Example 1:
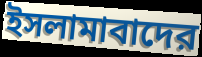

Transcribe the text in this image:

ইসলামাবাদের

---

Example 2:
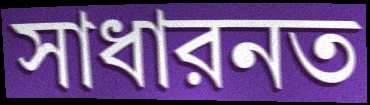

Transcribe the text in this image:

সাধারনত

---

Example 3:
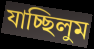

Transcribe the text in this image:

যাচ্ছিলুম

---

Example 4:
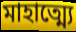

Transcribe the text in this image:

মাহাত্ম্যে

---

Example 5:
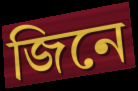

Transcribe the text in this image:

জিনে